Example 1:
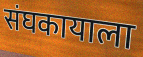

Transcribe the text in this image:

संघकायाला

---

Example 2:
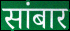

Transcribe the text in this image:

सांबार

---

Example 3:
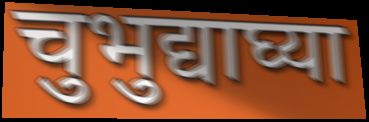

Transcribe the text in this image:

चुभुद्याघ्या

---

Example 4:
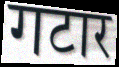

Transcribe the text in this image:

गटार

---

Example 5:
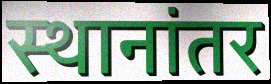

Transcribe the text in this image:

स्थानांतर